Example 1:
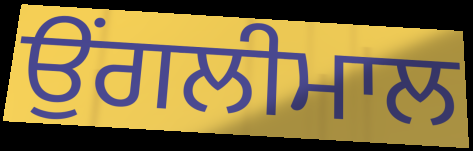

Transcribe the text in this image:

ਉਂਗਲੀਮਾਲ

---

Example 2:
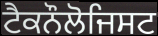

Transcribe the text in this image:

ਟੈਕਨੌਲੋਜਿਸਟ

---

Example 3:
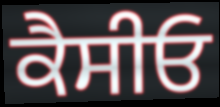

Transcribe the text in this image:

ਕੈਸੀਓ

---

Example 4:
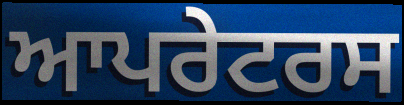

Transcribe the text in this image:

ਆਪਰੇਟਰਸ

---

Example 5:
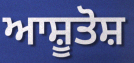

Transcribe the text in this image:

ਆਸ਼ੂਤੋਸ਼